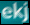
ekj